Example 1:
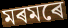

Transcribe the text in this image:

মৰমৰে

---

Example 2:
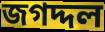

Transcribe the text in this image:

জগদ্দল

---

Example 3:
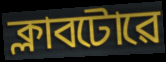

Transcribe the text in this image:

ক্লাবটোৱে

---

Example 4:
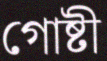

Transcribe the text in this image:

গোষ্টী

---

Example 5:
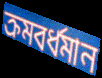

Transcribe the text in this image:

ক্ৰমবৰ্ধমান